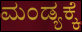
ಮಂಡ್ಯಕ್ಕೆ